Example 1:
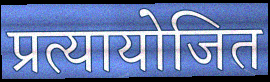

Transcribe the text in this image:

प्रत्यायोजित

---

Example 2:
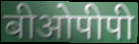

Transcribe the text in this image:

बीओपीपी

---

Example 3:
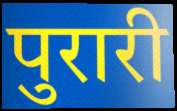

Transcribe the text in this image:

पुरारी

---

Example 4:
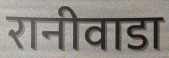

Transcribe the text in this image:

रानीवाडा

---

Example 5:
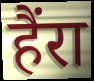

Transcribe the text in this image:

हैंरा